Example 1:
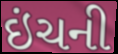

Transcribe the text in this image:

ઇંચની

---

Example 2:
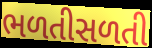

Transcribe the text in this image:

ભળતીસળતી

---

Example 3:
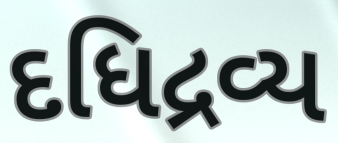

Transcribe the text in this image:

દધિદ્રવ્ય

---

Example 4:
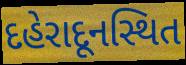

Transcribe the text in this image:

દહેરાદૂનસ્થિત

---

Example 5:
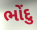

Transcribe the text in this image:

ભોંદુ